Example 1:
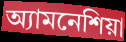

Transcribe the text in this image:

অ্যামনেশিয়া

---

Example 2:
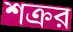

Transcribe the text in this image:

শক্রর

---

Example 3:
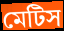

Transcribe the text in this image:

মেটিস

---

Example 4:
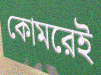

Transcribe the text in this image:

কোমরেই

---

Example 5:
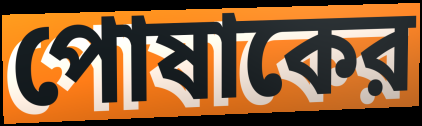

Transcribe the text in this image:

পোষাকের